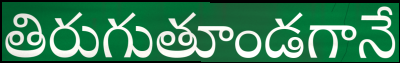
తిరుగుతూండగానే